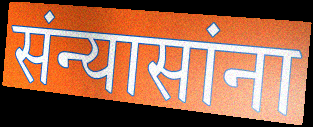
संन्यासांना